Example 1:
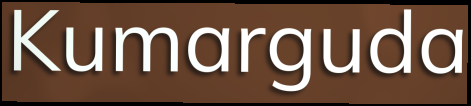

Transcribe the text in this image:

Kumarguda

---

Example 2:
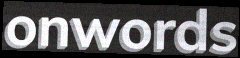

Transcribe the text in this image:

onwords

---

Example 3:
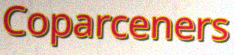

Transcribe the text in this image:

Coparceners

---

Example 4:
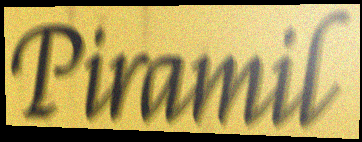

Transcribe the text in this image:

Piramil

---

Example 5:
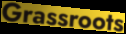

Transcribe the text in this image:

Grassroots